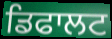
ਡਿਫਾਲਟ